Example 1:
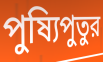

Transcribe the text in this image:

পুষ্যিপুতুর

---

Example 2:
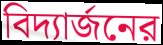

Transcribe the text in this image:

বিদ্যার্জনের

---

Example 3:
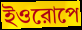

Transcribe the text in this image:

ইওরোপে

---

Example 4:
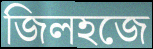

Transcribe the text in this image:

জিলহজে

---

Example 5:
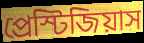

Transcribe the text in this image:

প্রেস্টিজিয়াস